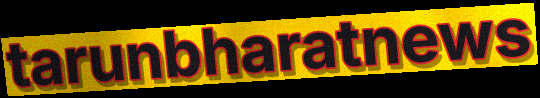
tarunbharatnews